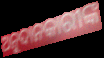
ଅନୁଦାନକାରୀଙ୍କ